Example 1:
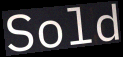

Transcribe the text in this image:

Sold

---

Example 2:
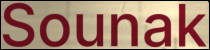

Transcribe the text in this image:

Sounak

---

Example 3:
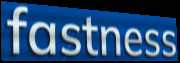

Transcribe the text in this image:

fastness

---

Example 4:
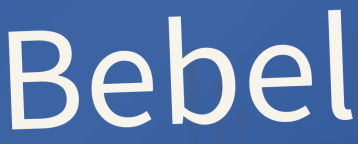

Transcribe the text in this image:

Bebel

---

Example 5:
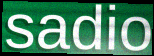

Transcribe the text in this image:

sadio